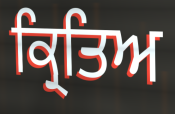
ਕ੍ਰਿਤਿਅ